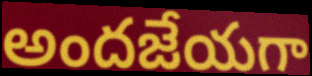
అందజేయగా